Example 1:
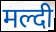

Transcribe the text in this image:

मल्दी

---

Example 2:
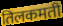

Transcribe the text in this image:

तिलकमती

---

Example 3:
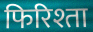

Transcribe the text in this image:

फिरिश्ता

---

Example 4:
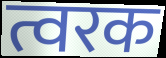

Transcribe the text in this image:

त्वरक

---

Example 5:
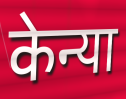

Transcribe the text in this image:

केन्या